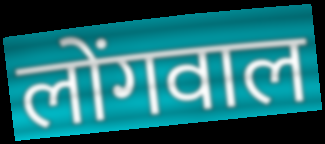
लोंगवाल